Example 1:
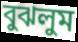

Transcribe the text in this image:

বুঝলুম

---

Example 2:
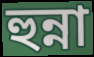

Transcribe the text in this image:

হুন্না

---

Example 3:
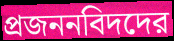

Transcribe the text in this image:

প্রজননবিদদের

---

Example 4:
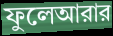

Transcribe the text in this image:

ফুলেআরার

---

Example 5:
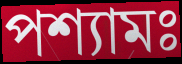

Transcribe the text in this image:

পশ্যামঃ